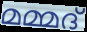
മമ്മദ്